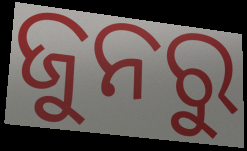
ଜୁନରୁ